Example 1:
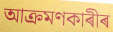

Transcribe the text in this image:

আক্ৰমণকাৰীৰ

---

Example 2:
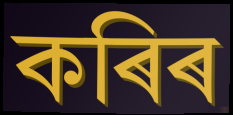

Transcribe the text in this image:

কৰিৰ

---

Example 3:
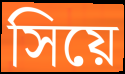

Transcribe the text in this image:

সিয়ে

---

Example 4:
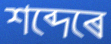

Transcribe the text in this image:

শব্দেৰে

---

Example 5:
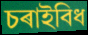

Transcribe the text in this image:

চৰাইবিধ